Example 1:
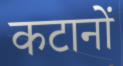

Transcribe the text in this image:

कटानों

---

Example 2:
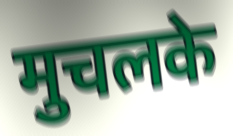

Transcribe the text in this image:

मुचलके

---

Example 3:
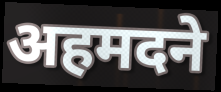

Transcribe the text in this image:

अहमदने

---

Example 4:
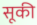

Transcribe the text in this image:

सूकी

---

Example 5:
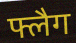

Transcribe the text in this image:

फ्लैग